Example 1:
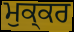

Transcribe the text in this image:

ਮੁਕ੍ਕਰ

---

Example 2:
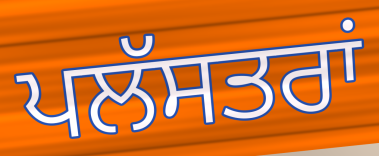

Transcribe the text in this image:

ਪਲੱਸਤਰਾਂ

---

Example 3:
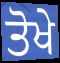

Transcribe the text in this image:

ਤੋਖੇ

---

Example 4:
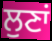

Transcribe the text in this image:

ਲੁਣਾਂ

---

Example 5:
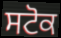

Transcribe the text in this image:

ਸਟੋਕ